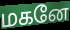
மகனே